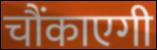
चौंकाएगी